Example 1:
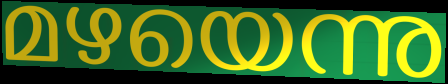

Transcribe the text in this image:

മഴയെന്നു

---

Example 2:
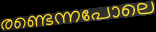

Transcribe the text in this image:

രണ്ടെന്നപോലെ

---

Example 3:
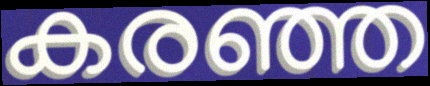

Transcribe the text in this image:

കരഞ്ഞ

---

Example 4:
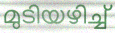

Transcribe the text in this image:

മുടിയഴിച്ച്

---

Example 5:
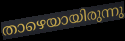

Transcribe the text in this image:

താഴെയായിരുന്നു